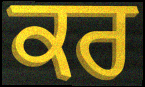
ਕਰ